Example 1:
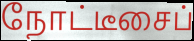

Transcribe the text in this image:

நோட்டீசைப்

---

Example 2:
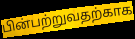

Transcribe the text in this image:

பின்பற்றுவதற்காக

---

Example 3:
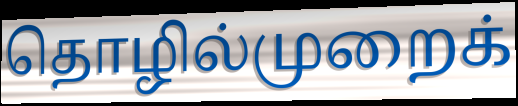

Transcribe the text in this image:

தொழில்முறைக்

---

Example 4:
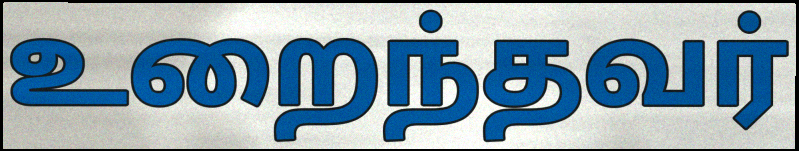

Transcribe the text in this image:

உறைந்தவர்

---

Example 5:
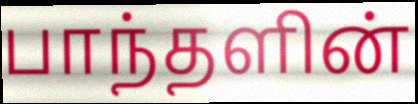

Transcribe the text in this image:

பாந்தளின்